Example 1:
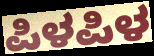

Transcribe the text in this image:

ಪಿಳಪಿಳ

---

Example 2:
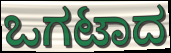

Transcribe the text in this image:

ಒಗಟಾದ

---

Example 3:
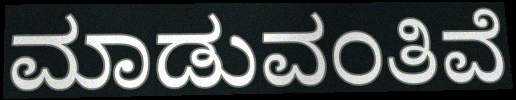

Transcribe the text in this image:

ಮಾಡುವಂತಿವೆ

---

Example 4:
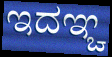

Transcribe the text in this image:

ಇದಞ್ಚ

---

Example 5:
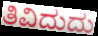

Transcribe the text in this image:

ತಿವಿದುದು